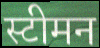
स्टीमन